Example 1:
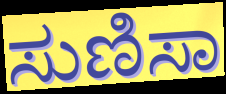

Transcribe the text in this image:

ಸುಣಿಸಾ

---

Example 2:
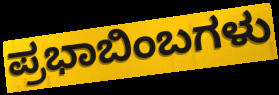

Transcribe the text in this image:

ಪ್ರಭಾಬಿಂಬಗಳು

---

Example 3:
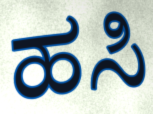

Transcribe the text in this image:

ಹಸಿ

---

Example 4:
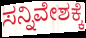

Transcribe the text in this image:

ಸನ್ನಿವೇಶಕ್ಕೆ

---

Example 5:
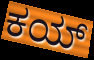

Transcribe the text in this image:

ಕಯ್